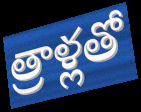
త్రాళ్లతో